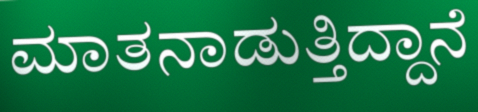
ಮಾತನಾಡುತ್ತಿದ್ದಾನೆ